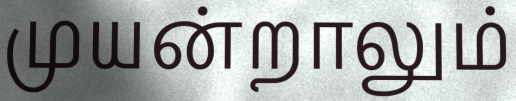
முயன்றாலும்